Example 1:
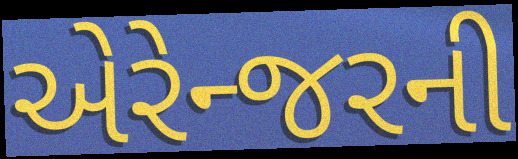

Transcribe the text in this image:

એરેન્જરની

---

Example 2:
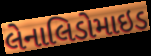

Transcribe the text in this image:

લેનાલિડોમાઇડ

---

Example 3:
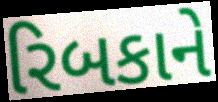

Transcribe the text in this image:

રિબકાને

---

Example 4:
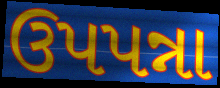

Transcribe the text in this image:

ઉપપન્ના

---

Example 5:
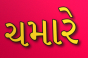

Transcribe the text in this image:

ચમારે